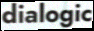
dialogic